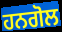
ਹਨਗੋਲ